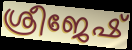
ശ്രീജേഷ്